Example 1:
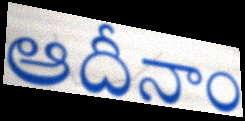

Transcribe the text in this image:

ఆదీనాం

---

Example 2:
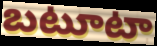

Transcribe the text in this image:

బటూటా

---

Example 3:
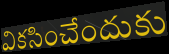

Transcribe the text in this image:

వికసించేందుకు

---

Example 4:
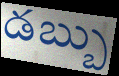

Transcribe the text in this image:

డబ్బు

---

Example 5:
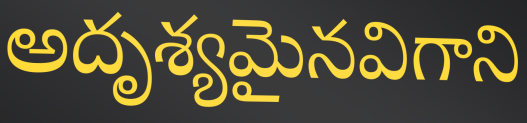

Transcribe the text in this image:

అదృశ్యమైనవిగాని